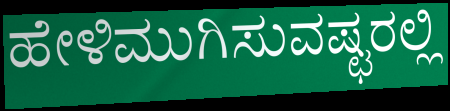
ಹೇಳಿಮುಗಿಸುವಷ್ಟರಲ್ಲಿ